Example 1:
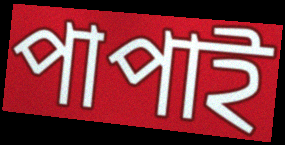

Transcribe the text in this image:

পাপাই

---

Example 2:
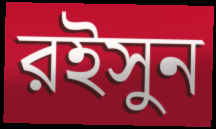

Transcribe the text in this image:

রইসুন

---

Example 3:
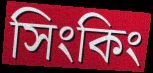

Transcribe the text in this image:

সিংকিং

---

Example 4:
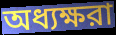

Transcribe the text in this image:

অধ্যক্ষরা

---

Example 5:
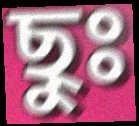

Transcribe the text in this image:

ছুঃ